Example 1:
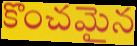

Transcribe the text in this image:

కొంచమైన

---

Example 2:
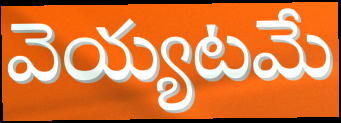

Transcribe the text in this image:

వెయ్యటమే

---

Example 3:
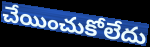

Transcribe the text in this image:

చేయించుకోలేదు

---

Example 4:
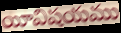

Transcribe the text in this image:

యీవిషయము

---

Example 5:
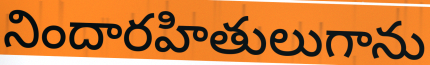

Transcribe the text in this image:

నిందారహితులుగాను